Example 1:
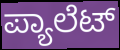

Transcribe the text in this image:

ಪ್ಯಾಲೆಟ್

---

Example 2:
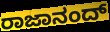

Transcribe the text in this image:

ರಾಜಾನಂದ್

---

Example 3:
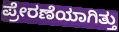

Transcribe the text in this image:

ಪ್ರೇರಣೆಯಾಗಿತ್ತು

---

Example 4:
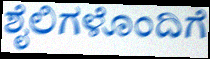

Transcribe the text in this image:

ಶೈಲಿಗಳೊಂದಿಗೆ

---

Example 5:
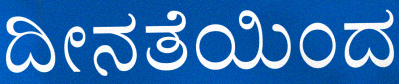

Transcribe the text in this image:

ದೀನತೆಯಿಂದ